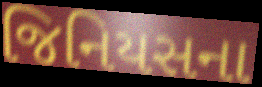
જિનિયસના